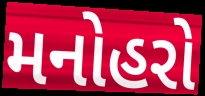
મનોહરો